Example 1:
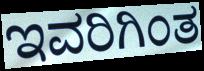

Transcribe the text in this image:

ಇವರಿಗಿಂತ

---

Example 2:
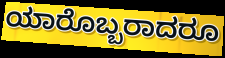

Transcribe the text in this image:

ಯಾರೊಬ್ಬರಾದರೂ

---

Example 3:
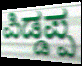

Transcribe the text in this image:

ಪಿಡ್ಡಪ್ಪ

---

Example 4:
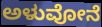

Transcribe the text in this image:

ಅಳುವೋನೆ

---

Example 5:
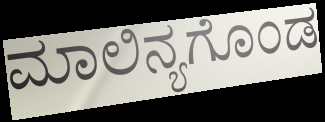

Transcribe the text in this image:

ಮಾಲಿನ್ಯಗೊಂಡ